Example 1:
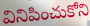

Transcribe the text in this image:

వినిపించుకోని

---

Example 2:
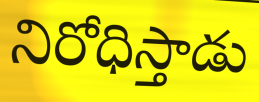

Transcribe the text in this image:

నిరోధిస్తాడు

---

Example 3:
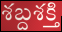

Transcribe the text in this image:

శబ్దశక్తి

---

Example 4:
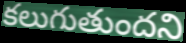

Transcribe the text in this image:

కలుగుతుందని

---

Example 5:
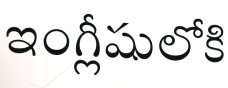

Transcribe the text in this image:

ఇంగ్లీషులోకి